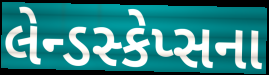
લેન્ડસ્કેપ્સના